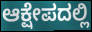
ಆಕ್ಷೇಪದಲ್ಲಿ